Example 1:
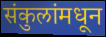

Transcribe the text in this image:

संकुलांमधून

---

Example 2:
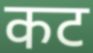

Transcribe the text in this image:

कट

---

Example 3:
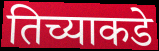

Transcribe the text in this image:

तिच्याकडे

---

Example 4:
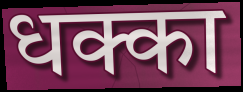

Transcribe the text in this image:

धक्का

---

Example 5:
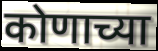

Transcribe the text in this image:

कोणाच्या